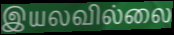
இயலவில்லை